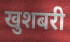
खुशबरी